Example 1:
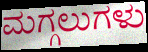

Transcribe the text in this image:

ಮಗ್ಗಲುಗಳು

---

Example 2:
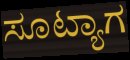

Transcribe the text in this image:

ಸೂಟ್ಯಾಗ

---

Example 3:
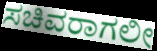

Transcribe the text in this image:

ಸಚಿವರಾಗಲೀ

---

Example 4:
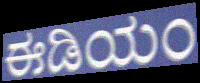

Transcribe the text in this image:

ಈಡಿಯಂ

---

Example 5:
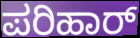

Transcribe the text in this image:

ಪರಿಹಾರ್